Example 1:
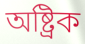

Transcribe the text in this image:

অষ্ট্রিক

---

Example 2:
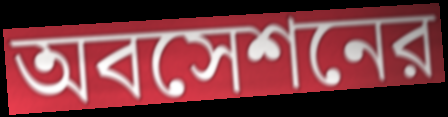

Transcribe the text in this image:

অবসেশনের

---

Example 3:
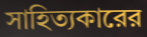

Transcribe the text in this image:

সাহিত্যকারের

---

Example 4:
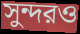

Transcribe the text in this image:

সুন্দরও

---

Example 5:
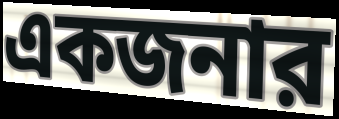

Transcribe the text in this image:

একজনার